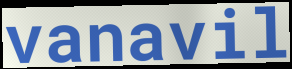
vanavil